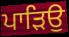
ਪਾੜਿਉ